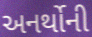
અનર્થોની